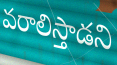
వరాలిస్తాడని